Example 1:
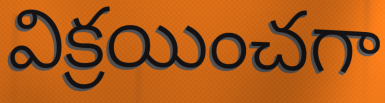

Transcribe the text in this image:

విక్రయించగా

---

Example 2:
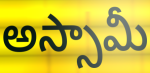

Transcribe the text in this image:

అస్సామీ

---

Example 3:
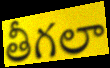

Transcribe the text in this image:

తీగలా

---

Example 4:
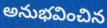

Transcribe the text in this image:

అనుభవించిన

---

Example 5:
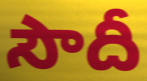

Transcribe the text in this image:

సౌదీ